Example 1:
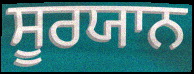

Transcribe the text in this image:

ਸੂਰਯਾਨ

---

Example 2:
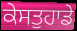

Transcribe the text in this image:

ਕੇਸਤੁਹਾਡੇ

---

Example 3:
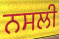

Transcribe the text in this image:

ਨਸਲੀ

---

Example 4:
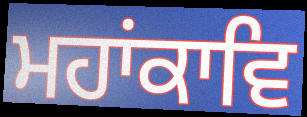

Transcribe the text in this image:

ਮਹਾਂਕਾਵਿ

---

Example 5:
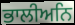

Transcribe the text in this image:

ਭਾਲੀਅਨਿ